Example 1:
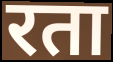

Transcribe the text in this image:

रता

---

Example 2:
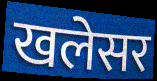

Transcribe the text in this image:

खलेसर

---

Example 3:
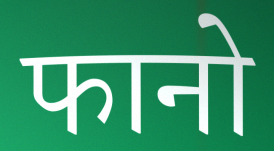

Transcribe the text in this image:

फानो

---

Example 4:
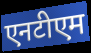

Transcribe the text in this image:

एनटीएम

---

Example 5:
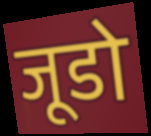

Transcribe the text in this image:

जूडो